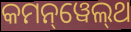
କମନ୍‌ୱେଲ୍‌ଥ